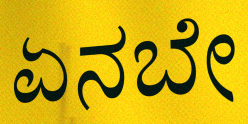
ಏನಬೇ